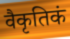
वैकृतिकं